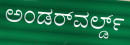
ಅಂಡರ್‌ವರ್ಲ್ಡ್